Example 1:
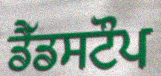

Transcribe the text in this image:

ਡੈੱਡਸਟੌਪ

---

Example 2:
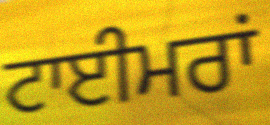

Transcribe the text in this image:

ਟਾਈਮਰਾਂ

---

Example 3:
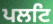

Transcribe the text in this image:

ਪਲਟਿ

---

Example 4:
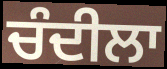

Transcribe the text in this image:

ਚੰਦੀਲਾ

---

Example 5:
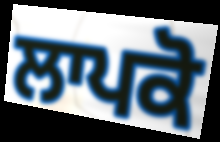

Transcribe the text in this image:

ਲਾਪਕੋ